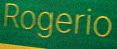
Rogerio